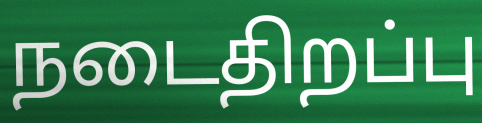
நடைதிறப்பு